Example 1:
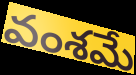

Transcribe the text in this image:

వంశమే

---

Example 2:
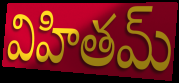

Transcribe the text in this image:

విహితమ్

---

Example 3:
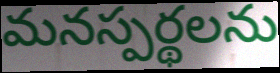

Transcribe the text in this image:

మనస్పర్థలను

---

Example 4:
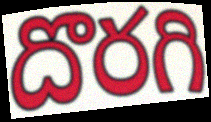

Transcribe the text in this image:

దొరగి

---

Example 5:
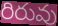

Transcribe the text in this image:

రిరువు